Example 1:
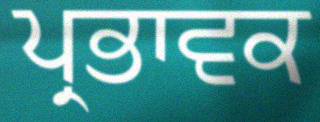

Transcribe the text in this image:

ਪ੍ਰਭਾਵਕ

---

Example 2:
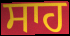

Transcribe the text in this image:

ਸਾਹ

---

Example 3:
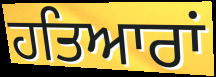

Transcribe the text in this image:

ਹਤਿਆਰਾਂ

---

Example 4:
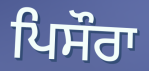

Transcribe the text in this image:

ਪਿਸੌਰਾ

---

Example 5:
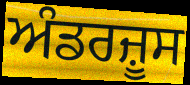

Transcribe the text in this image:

ਅੰਡਰਜ਼ੂਸ